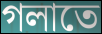
গলাতে